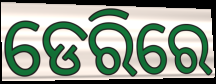
ଡେରିରେ